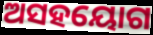
ଅସହୟୋଗ